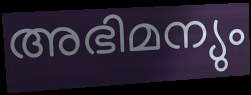
അഭിമന്യും